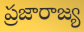
ప్రజారాజ్య